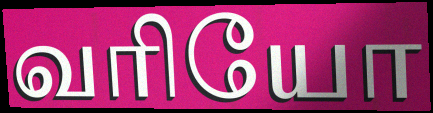
வரியோ